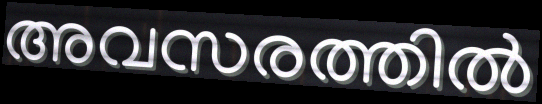
അവസരത്തിൽ